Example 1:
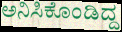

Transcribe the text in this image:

ಅನಿಸಿಕೊಂಡಿದ್ದ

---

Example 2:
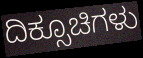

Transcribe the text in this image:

ದಿಕ್ಸೂಚಿಗಳು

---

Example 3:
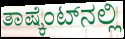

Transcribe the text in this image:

ತಾಷ್ಕೆಂಟ್‌ನಲ್ಲಿ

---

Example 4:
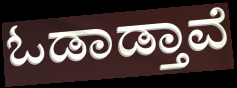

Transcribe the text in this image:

ಓಡಾಡ್ತಾವೆ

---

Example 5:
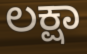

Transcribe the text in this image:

ಲಕ್ಷಾ